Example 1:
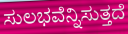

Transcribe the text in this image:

ಸುಲಭವೆನ್ನಿಸುತ್ತದೆ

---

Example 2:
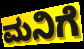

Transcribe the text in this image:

ಮನಿಗೆ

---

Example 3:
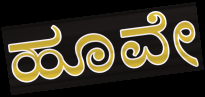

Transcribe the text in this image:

ಹೂವೇ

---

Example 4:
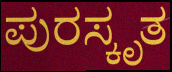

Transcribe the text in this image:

ಪುರಸ್ಕೃತ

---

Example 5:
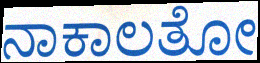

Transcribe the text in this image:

ನಾಕಾಲತೋ